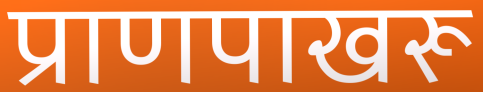
प्राणपाखरू